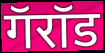
गॅरॉड